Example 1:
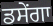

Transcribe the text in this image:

ਡਸੇਂਗਾ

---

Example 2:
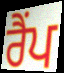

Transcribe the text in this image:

ਰੈਂਪ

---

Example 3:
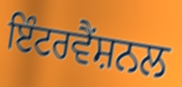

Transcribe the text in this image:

ਇੰਟਰਵੈਂਸ਼ਨਲ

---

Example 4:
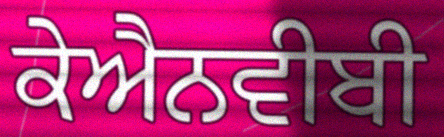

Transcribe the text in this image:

ਕੇਐਨਵੀਬੀ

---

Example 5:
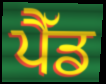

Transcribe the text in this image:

ਪੈੱਡ